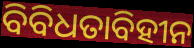
ବିବିଧତାବିହୀନ